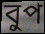
বুপ